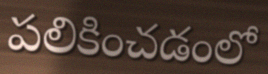
పలికించడంలో